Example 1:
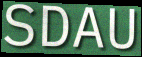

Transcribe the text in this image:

SDAU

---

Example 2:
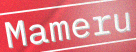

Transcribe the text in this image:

Mameru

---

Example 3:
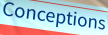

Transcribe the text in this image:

Conceptions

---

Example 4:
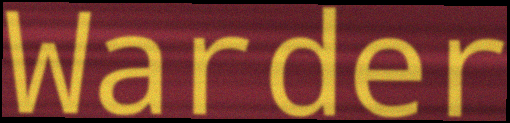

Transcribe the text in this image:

Warder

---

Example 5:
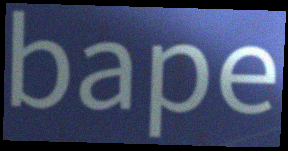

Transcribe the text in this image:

bape